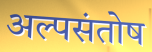
अल्पसंतोष